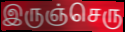
இருஞ்செரு